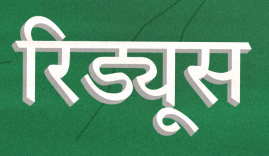
रिड्यूस